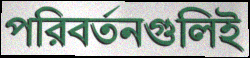
পরিবর্তনগুলিই